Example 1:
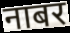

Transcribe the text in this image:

नाबर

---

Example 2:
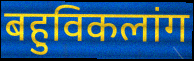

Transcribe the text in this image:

बहुविकलांग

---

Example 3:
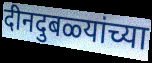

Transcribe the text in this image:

दीनदुबळ्यांच्या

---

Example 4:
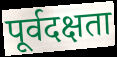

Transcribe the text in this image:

पूर्वदक्षता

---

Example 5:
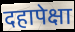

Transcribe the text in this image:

दहापेक्षा